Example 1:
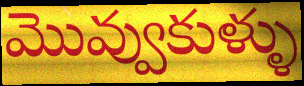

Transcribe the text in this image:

మొవ్వుకుళ్ళు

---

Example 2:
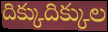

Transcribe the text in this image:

దిక్కుదిక్కుల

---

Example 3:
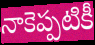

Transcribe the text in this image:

నాకెప్పటికీ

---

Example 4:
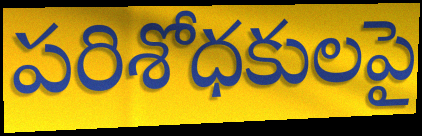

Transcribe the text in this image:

పరిశోధకులపై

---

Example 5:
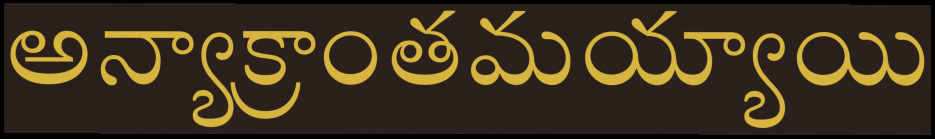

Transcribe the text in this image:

అన్యాక్రాంతమయ్యాయి